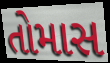
તોમાસ